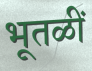
भूतळीं